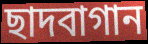
ছাদবাগান